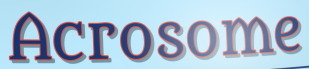
Acrosome